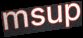
msup